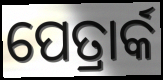
ପେତ୍ରାର୍କ